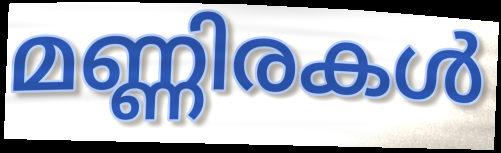
മണ്ണിരകൾ